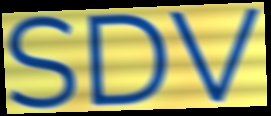
SDV